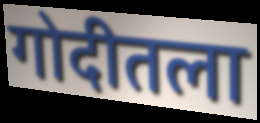
गोदीतला